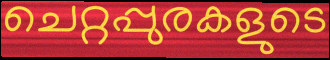
ചെറ്റപ്പുരകളുടെ